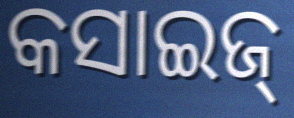
କସାଇଜ୍